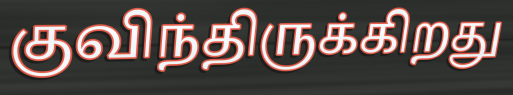
குவிந்திருக்கிறது